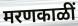
मरणकाळीं